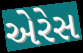
એરેસ